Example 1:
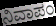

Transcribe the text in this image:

ನಿವಾಪಂ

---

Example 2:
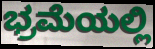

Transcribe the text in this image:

ಭ್ರಮೆಯಲ್ಲಿ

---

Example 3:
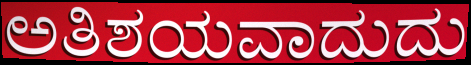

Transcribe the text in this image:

ಅತಿಶಯವಾದುದು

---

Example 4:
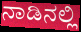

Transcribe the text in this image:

ನಾಡಿನಲ್ಲಿ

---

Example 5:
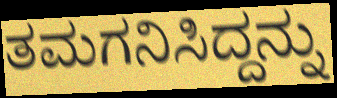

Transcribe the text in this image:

ತಮಗನಿಸಿದ್ದನ್ನು